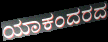
ಯಾಕಂದರದ